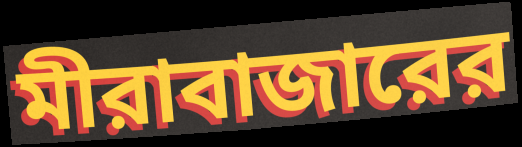
মীরাবাজারের